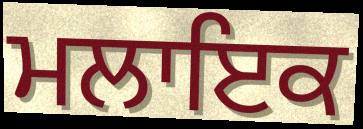
ਮਲਾਇਕ